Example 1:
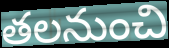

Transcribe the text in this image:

తలనుంచి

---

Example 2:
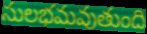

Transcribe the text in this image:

సులభమవుతుంది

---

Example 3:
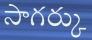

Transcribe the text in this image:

సాగర్కు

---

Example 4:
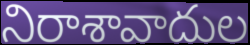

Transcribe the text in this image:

నిరాశావాదుల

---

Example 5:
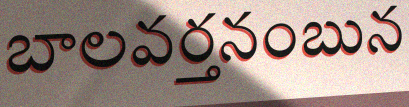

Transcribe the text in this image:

బాలవర్తనంబున